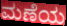
ಮಣೆಯ